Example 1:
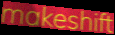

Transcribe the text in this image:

makeshift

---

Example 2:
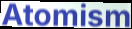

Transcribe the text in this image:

Atomism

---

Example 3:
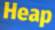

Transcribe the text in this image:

Heap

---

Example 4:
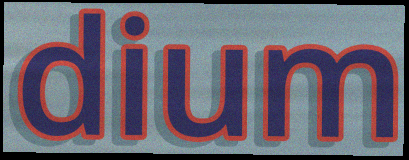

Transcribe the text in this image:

dium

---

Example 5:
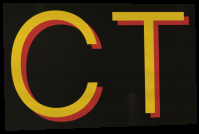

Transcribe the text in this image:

CT